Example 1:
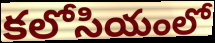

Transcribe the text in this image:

కలోసియంలో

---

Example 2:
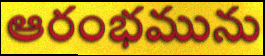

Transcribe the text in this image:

ఆరంభమును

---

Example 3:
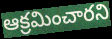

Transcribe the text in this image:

ఆక్రమించారని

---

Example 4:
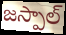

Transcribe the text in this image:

జస్పాల్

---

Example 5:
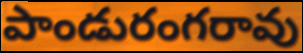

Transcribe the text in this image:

పాండురంగరావు